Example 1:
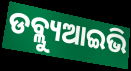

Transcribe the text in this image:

ଡବ୍ଲ୍ୟୁଆଇଭି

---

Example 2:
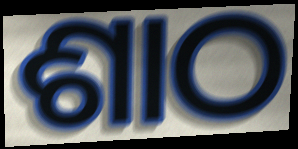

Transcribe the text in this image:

ଶାଠ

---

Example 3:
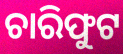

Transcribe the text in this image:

ଚାରିଫୁଟ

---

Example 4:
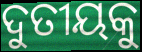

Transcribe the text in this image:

ଦୁତୀୟକୁ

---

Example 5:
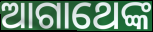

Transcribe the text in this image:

ଆଗାଥେଙ୍କ